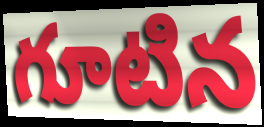
గూటిన